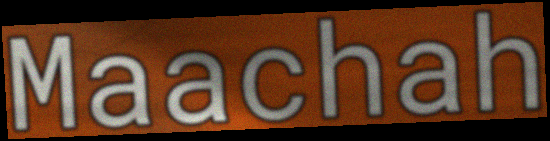
Maachah